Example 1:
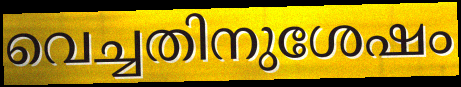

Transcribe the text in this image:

വെച്ചതിനുശേഷം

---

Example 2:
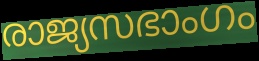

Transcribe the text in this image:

രാജ്യസഭാംഗം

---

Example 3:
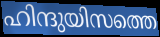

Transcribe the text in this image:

ഹിന്ദുയിസത്തെ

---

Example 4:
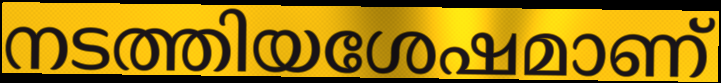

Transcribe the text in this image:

നടത്തിയശേഷമാണ്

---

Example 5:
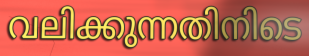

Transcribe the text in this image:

വലിക്കുന്നതിനിടെ